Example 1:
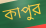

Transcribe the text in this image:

কাপুর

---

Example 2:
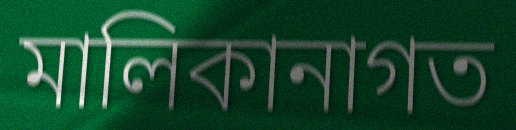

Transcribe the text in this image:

মালিকানাগত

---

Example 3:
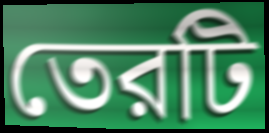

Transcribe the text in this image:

তেরটি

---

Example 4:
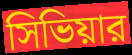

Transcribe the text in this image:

সিভিয়ার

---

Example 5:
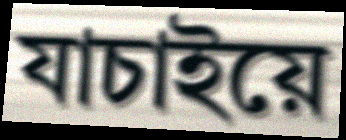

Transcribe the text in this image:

যাচাইয়ে